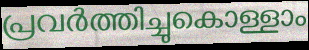
പ്രവർത്തിച്ചുകൊള്ളാം